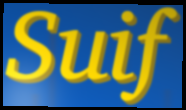
Suif